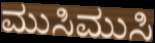
ಮುಸಿಮುಸಿ